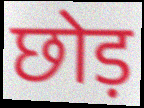
छोड़